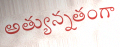
అత్యున్నతంగా